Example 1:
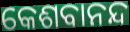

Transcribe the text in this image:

କେଶବାନନ୍ଦ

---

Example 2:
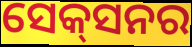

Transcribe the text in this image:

ସେକ୍‍ସନର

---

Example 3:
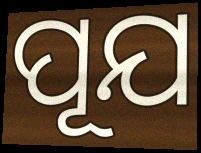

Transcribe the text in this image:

ପୂଯ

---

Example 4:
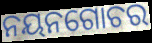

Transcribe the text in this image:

ନୟନଗୋଚର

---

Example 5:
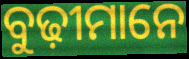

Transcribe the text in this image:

ବୁଢ଼ୀମାନେ